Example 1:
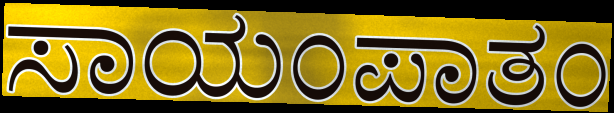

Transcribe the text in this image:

ಸಾಯಂಪಾತಂ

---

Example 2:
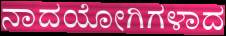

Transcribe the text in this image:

ನಾದಯೋಗಿಗಳಾದ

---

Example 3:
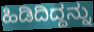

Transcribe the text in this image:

ಹಿಡಿದಿದ್ದನ್ನು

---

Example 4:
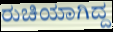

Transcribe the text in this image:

ರುಚಿಯಾಗಿದ್ದ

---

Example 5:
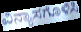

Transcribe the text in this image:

ವಿನ್ಯಾಸಗೊಳಿಸಿ